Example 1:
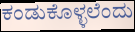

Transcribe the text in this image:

ಕಂಡುಕೊಳ್ಳಲೆಂದು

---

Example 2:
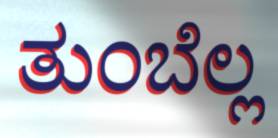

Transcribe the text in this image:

ತುಂಬೆಲ್ಲ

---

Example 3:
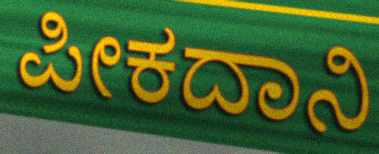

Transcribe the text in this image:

ಪೀಕದಾನಿ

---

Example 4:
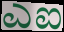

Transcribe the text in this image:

ಎಐ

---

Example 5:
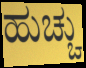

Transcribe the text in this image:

ಹುಚ್ಚು